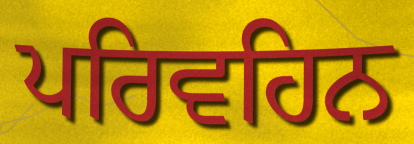
ਪਰਿਵਹਿਨ